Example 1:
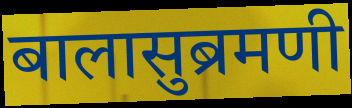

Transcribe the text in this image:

बालासुब्रमणी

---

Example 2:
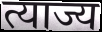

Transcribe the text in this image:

त्याज्य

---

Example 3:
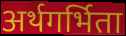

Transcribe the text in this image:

अर्थगर्भिता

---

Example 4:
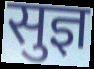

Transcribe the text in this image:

सुज्ञ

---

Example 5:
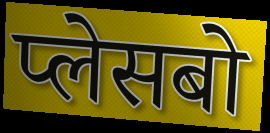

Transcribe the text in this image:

प्लेसबो